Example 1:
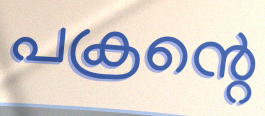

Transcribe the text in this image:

പക്രന്റെ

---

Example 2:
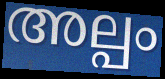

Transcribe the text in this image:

അല്പം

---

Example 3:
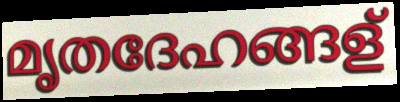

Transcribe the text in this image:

മൃതദേഹങ്ങള്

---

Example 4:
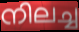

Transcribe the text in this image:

നിലച്ച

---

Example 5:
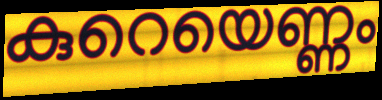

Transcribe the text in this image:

കുറെയെണ്ണം